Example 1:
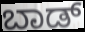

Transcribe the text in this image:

ಬಾಡ್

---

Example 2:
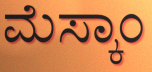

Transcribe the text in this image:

ಮೆಸ್ಕಾಂ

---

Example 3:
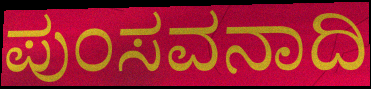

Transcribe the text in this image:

ಪುಂಸವನಾದಿ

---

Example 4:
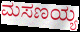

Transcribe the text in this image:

ಮಸಣಯ್ಯ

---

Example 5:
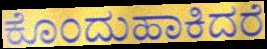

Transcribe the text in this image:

ಕೊಂದುಹಾಕಿದರೆ